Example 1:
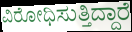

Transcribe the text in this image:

ವಿರೋಧಿಸುತ್ತಿದ್ದಾರೆ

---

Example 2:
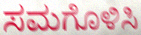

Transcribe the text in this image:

ಸಮಗೊಳಿಸಿ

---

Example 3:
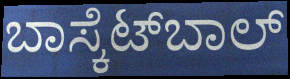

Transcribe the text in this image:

ಬಾಸ್ಕೆಟ್‍ಬಾಲ್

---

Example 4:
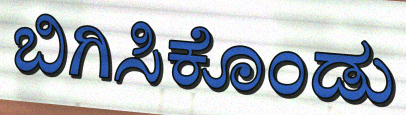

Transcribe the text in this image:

ಬಿಗಿಸಿಕೊಂಡು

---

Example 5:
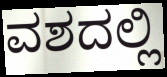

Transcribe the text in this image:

ವಶದಲ್ಲಿ